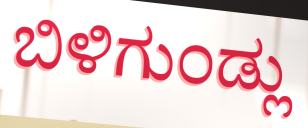
ಬಿಳಿಗುಂಡ್ಲು